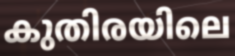
കുതിരയിലെ